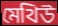
মেথিউ